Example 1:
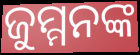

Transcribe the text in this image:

ଜୁମ୍ମନଙ୍କ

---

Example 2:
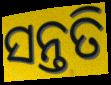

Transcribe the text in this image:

ସନ୍ତତି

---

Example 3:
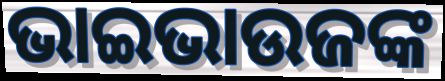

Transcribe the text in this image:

ଭାଇଭାଉଜଙ୍କ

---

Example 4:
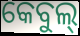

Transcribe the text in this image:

କେବୁଲ୍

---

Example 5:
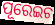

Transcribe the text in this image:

ପୂରେଇଚ